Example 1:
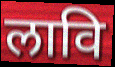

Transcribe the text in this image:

लावि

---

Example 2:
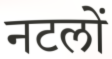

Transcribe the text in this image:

नटलों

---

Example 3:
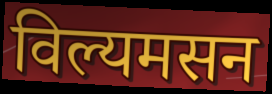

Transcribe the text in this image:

विल्यमसन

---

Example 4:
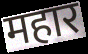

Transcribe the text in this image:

महार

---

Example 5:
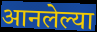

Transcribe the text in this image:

आनलेल्या